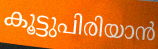
കൂട്ടുപിരിയാൻ